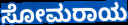
ಸೋಮರಾಯ